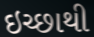
ઇચ્છાથી